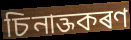
চিনাক্তকৰণ